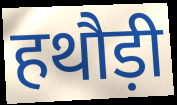
हथौड़ी